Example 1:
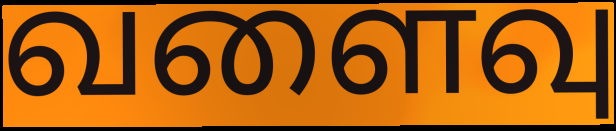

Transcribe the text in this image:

வளைவு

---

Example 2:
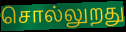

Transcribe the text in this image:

சொல்லுறது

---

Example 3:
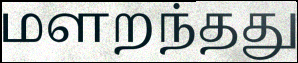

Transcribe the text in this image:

மளறந்தது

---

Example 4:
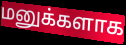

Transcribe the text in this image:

மனுக்களாக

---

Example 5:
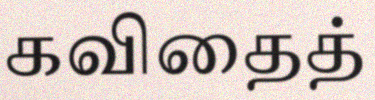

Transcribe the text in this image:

கவிதைத்